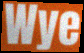
Wye